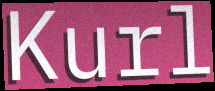
Kurl